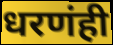
धरणंही